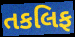
તકલિફ